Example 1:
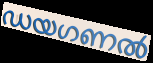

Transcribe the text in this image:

ഡയഗണൽ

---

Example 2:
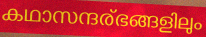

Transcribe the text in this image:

കഥാസന്ദര്ഭങ്ങളിലും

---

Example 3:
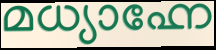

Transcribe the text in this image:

മധ്യാഹ്നേ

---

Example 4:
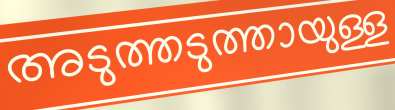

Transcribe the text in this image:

അടുത്തടുത്തായുള്ള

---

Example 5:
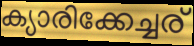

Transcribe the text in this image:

ക്യാരിക്കേച്ചര്